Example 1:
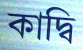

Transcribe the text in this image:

কাদ্বি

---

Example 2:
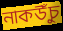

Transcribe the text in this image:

নাকউঁচু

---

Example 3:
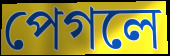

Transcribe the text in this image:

পেগলে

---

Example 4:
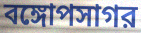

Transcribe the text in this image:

বঙ্গোপসাগর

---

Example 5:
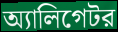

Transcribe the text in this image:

অ্যালিগেটর